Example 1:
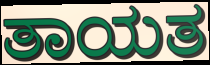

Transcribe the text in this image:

ತಾಯತ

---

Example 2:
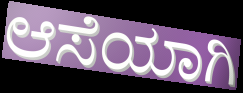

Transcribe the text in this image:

ಆಸೆಯಾಗಿ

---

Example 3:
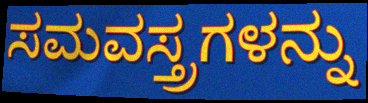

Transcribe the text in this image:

ಸಮವಸ್ತ್ರಗಳನ್ನು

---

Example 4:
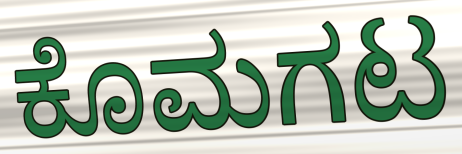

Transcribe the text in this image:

ಕೊಮಗಟ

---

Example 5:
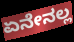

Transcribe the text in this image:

ಏನೇನಲ್ಲ